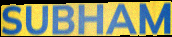
SUBHAM